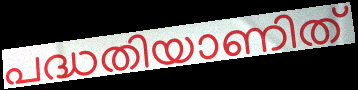
പദ്ധതിയാണിത്